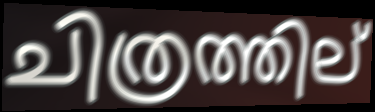
ചിത്രത്തില്